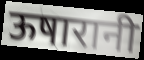
ऊषारानी